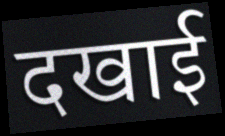
दखाई